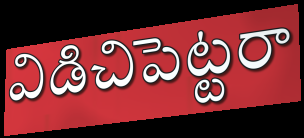
విడిచిపెట్టరా